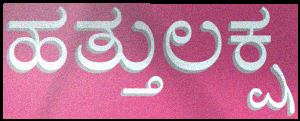
ಹತ್ತುಲಕ್ಷ